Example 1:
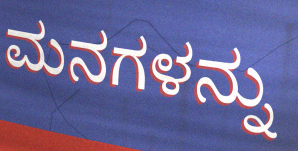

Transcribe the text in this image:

ಮನಗಳನ್ನು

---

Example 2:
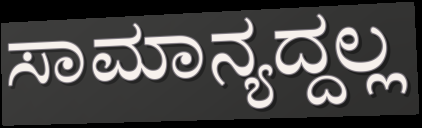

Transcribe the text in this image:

ಸಾಮಾನ್ಯದ್ದಲ್ಲ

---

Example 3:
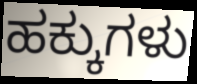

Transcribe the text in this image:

ಹಕ್ಕುಗಳು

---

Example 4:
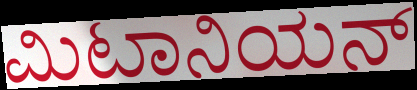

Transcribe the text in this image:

ಮಿಟಾನಿಯನ್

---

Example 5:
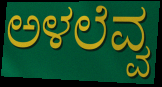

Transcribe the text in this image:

ಅಳಲೆವ್ವ